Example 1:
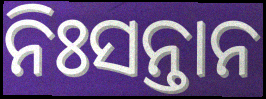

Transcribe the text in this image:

ନିଃସନ୍ତାନ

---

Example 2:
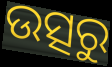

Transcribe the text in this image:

ଉତ୍ସରୁ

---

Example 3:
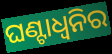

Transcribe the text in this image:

ଘଣ୍ଟାଧ୍ୱନିର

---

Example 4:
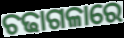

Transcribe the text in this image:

ଚଢାଗଳାରେ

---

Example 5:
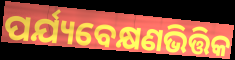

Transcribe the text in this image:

ପର୍ଯ୍ୟବେକ୍ଷଣଭିତ୍ତିକ